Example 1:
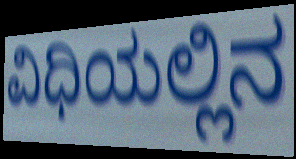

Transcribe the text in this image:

ವಿಧಿಯಲ್ಲಿನ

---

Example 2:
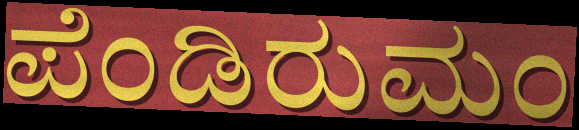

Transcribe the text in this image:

ಪೆಂಡಿರುಮಂ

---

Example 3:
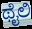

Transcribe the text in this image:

ಥೈಲಿ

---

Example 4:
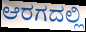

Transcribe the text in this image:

ಆರಗದಲ್ಲಿ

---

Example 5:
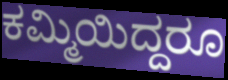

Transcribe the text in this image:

ಕಮ್ಮಿಯಿದ್ದರೂ